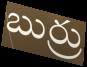
బుర్రు